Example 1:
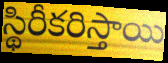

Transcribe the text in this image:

స్థిరీకరిస్తాయి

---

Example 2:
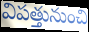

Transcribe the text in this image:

విపత్తునుంచి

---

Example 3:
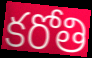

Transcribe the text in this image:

కరోతి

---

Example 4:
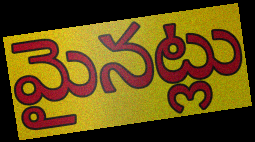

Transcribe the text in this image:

మైనట్లు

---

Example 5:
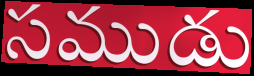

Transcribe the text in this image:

సముడు